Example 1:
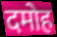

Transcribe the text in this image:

दमोह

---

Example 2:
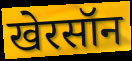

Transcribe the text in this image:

खेरसॉन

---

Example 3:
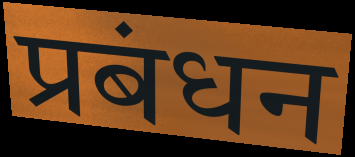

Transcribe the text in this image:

प्रबंधन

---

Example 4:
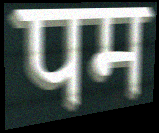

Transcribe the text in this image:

पम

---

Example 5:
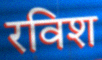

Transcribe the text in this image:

रविश